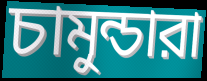
চামুন্ডারা